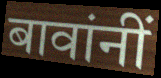
बावांनीं